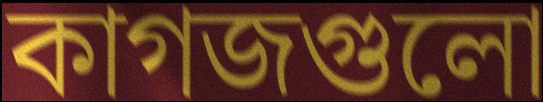
কাগজগুলো